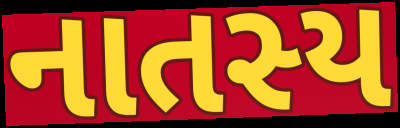
નાતસ્ય